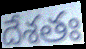
దేశతః